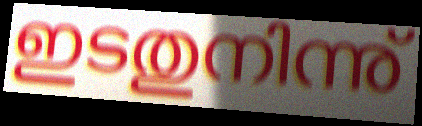
ഇടതുനിന്നു്